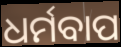
ଧର୍ମବାପ